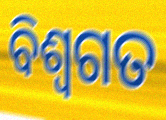
ବିଶ୍ଵଗତ